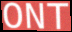
ONT